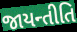
જાયન્તીતિ